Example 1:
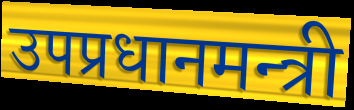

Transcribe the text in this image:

उपप्रधानमन्त्री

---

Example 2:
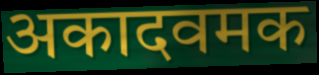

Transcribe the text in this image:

अकादवमक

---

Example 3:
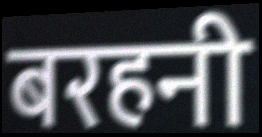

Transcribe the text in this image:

बरहनी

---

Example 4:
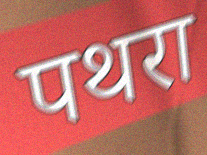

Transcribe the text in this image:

पथरा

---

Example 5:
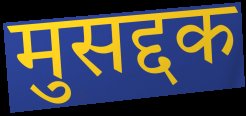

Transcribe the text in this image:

मुसद्दक